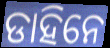
ଡାହିନେ